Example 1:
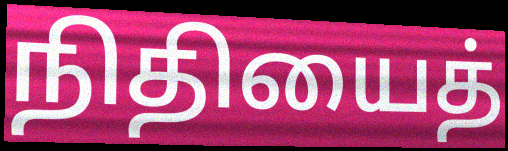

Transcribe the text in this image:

நிதியைத்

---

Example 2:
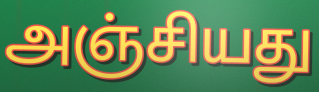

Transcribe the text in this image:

அஞ்சியது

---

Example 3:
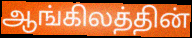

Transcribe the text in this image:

ஆங்கிலத்தின்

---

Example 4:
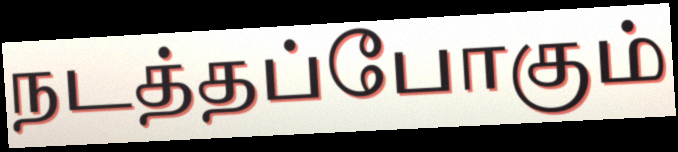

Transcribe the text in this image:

நடத்தப்போகும்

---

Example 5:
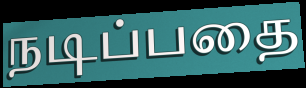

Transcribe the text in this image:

நடிப்பதை